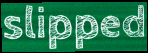
slipped